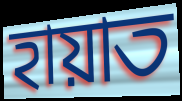
হায়াত